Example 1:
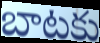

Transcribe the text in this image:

బాటకు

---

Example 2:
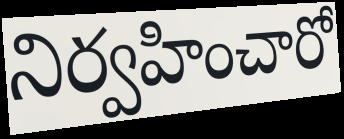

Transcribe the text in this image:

నిర్వహించారో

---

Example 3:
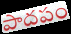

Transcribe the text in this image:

పాదపం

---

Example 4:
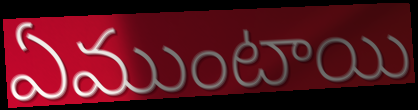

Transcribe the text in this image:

ఏముంటాయి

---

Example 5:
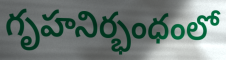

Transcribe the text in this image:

గృహనిర్భంధంలో